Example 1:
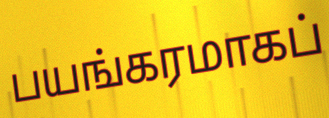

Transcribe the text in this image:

பயங்கரமாகப்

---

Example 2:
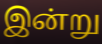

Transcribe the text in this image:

இன்று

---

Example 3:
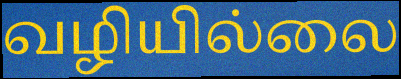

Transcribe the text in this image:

வழியில்லை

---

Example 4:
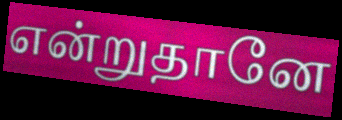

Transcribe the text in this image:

என்றுதானே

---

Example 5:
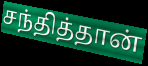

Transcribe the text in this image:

சந்தித்தான்